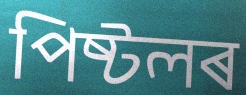
পিষ্টলৰ